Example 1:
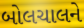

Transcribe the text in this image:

બોલચાલને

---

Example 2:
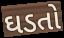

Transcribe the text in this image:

ઘડતો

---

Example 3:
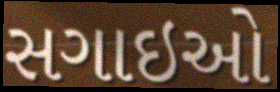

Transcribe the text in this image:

સગાઇઓ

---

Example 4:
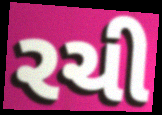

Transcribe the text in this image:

રચી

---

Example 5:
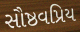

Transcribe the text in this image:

સૌષ્ઠવપ્રિય